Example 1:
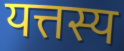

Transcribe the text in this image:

यत्तस्य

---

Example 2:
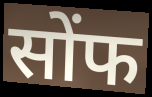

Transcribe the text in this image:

सोंफ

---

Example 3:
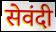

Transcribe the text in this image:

सेवंदी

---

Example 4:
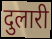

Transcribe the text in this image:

दुलारी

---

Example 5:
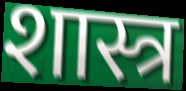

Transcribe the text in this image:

शास्त्र